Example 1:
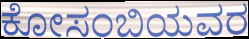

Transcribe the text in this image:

ಕೋಸಂಬಿಯವರ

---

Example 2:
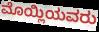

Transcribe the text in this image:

ಮೊಯ್ಲಿಯವರು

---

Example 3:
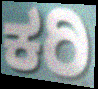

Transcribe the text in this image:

ಕರಿ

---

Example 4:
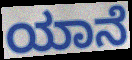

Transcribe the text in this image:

ಯಾನೆ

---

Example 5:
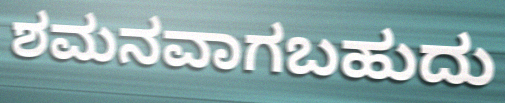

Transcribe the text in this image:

ಶಮನವಾಗಬಹುದು